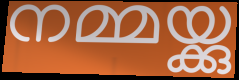
നമ്മയ്ക്കു